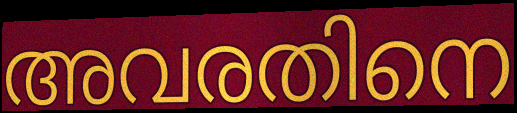
അവരതിനെ